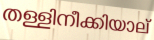
തള്ളിനീക്കിയാല്